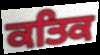
ਕਤਿਕ